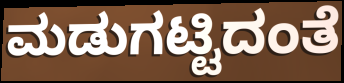
ಮಡುಗಟ್ಟಿದಂತೆ